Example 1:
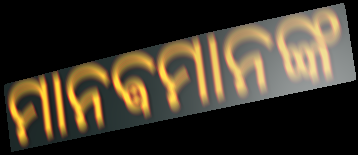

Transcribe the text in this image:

ମାନଵମାନଙ୍କ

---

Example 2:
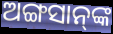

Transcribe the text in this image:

ଅଙ୍ଗସାନ୍‌ଙ୍କ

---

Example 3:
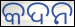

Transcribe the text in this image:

କଦନ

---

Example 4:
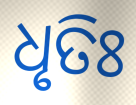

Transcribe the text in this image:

ଧୃତିଃ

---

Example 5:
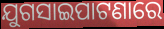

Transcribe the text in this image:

ଯୁଗସାଇପାଟଣାରେ